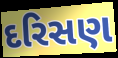
દરિસણ